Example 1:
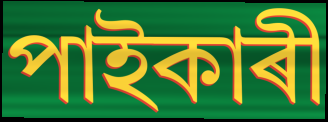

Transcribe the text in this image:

পাইকাৰী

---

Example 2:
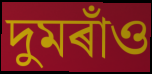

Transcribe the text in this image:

দুমৰাঁও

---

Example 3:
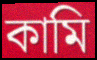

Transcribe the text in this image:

কামি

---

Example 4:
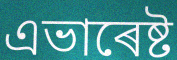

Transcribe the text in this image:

এভাৰেষ্ট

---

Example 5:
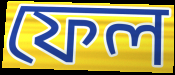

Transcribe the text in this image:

ফেল